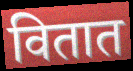
वितात